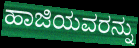
ಹಾಜಿಯವರನ್ನು